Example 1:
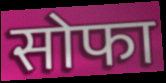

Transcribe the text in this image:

सोफा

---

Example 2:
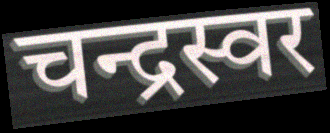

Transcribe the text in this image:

चन्द्रस्वर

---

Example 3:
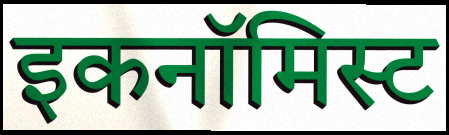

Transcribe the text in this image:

इकनॉमिस्‍ट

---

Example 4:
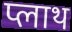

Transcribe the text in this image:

प्लाथ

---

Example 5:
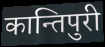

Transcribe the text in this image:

कान्तिपुरी